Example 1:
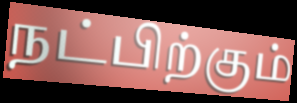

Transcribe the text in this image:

நட்பிற்கும்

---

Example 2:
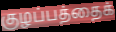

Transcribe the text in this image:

குழப்பத்தைக்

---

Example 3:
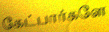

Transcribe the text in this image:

கேட்பார்களே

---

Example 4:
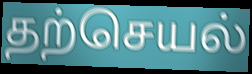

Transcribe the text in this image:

தற்செயல்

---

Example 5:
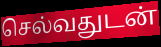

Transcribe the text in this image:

செல்வதுடன்